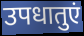
उपधातुएं